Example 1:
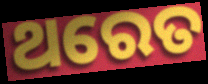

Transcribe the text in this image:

ଥରେତ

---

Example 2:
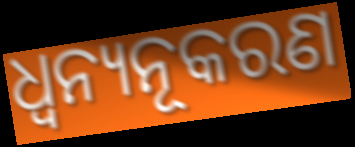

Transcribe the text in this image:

ଧ୍ୱନ୍ୟନୂକରଣ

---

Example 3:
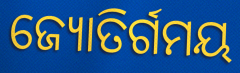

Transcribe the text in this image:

ଜ୍ୟୋତିର୍ଗମୟ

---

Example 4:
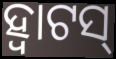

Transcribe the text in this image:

ହ୍ୱାଟସ୍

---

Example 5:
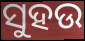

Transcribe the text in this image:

ସୁହଉ